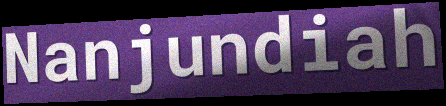
Nanjundiah